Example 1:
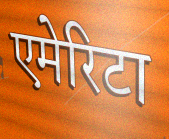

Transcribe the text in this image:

एमेरिटा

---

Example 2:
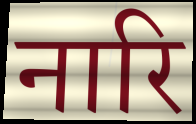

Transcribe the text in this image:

नारि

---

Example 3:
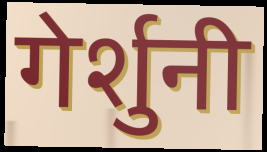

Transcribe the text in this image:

गेर्शुनी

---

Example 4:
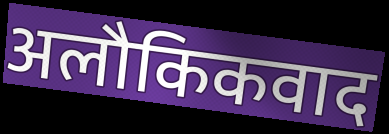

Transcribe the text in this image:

अलौकिकवाद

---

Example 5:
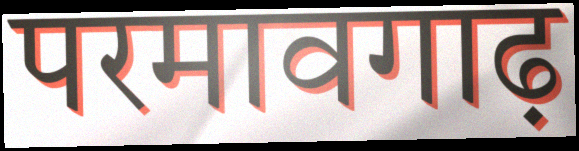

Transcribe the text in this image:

परमावगाढ़